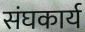
संघकार्य